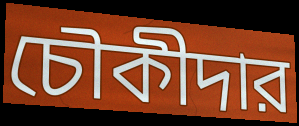
চৌকীদার